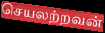
செயலற்றவன்